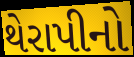
થેરાપીનો